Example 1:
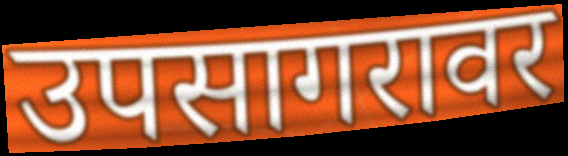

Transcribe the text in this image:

उपसागरावर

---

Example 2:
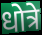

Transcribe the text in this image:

धोत्रे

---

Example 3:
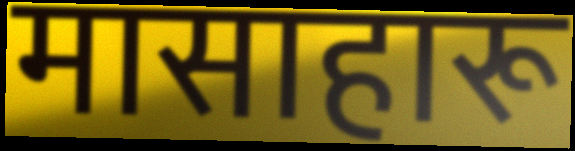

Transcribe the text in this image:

मासाहारू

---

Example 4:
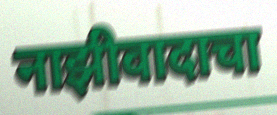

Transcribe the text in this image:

नाझीवादाचा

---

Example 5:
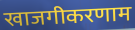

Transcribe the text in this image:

खाजगीकरणाम